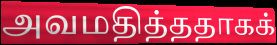
அவமதித்ததாகக்